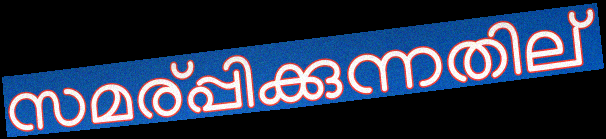
സമര്പ്പിക്കുന്നതില്